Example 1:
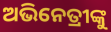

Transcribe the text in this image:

ଅଭିନେତ୍ରୀଙ୍କୁ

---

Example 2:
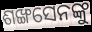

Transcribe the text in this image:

ଶଙ୍ଖସେନଙ୍କୁ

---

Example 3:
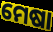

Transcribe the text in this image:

ମେଷା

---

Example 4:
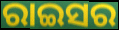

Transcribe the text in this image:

ରାଇସର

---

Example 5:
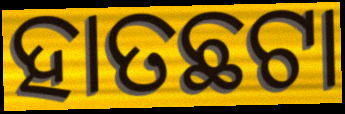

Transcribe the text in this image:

ହାତଛଟା